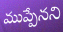
ముప్పేనని